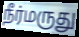
நீர்மருது